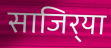
साजिर्‍या